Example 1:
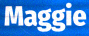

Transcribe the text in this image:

Maggie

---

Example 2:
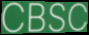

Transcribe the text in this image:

CBSC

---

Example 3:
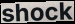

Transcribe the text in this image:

shock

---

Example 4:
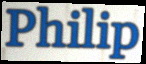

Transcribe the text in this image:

Philip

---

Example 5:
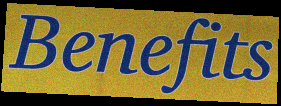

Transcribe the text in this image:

Benefits